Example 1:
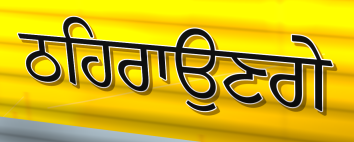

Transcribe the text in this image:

ਠਹਿਰਾਉਣਗੇ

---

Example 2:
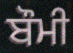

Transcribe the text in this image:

ਬੌਮੀ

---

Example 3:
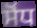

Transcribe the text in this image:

ਸੋਂਧ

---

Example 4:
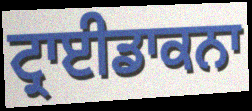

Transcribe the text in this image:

ਟ੍ਰਾਈਡਾਕਨਾ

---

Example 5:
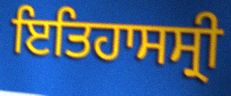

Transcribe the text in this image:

ਇਤਿਹਾਸਸ੍ਰੀ